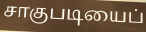
சாகுபடியைப்